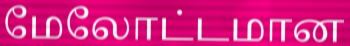
மேலோட்டமான